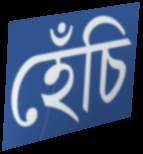
হেঁচি